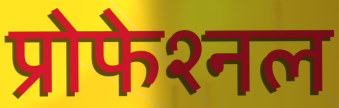
प्रोफेश्नल